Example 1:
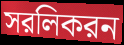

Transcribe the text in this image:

সরলিকরন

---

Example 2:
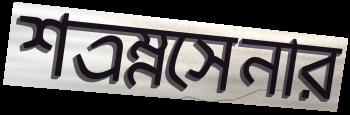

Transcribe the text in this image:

শত্রম্নসেনার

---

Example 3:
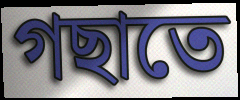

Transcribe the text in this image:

গছাতে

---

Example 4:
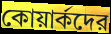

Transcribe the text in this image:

কোয়ার্কদের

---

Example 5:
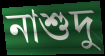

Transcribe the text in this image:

নাশুদু